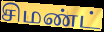
சிமண்ட்